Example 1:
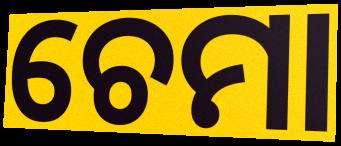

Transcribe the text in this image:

ଚେମା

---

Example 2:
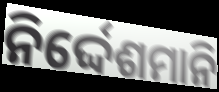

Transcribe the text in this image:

ନିର୍ଦ୍ଦେଶମାନି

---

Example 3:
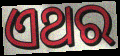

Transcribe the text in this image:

ଏଥର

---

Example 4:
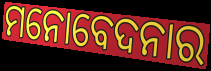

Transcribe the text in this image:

ମନୋବେଦନାର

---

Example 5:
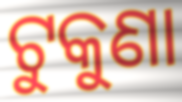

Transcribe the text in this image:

ଟୁକୁଣା